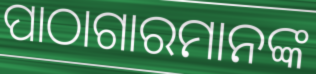
ପାଠାଗାରମାନଙ୍କ